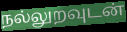
நல்லுறவுடன்